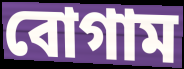
বোগাম